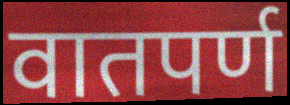
वातपर्ण